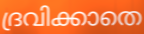
ദ്രവിക്കാതെ